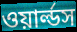
ওয়ার্ল্ডস